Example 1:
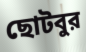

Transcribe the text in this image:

ছোটবুর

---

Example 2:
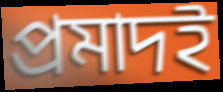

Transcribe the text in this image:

প্রমাদই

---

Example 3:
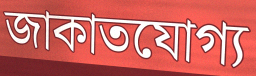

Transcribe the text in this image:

জাকাতযোগ্য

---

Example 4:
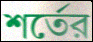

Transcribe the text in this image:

শর্তের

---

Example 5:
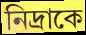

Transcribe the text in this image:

নিদ্রাকে